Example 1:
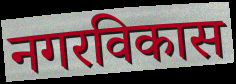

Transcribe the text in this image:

नगरविकास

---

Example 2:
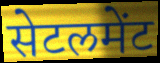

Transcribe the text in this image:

सेटलमेंट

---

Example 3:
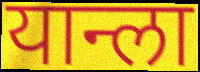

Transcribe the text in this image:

यान्ला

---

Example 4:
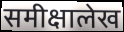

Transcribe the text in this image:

समीक्षालेख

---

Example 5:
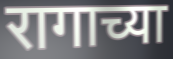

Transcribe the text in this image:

रागाच्या